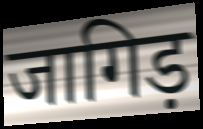
जागिड़